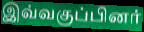
இவ்வகுப்பினர்